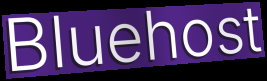
Bluehost